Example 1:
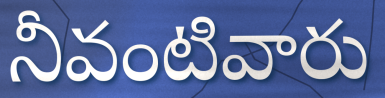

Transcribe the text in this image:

నీవంటివారు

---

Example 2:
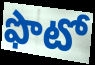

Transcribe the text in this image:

ఫొటో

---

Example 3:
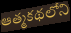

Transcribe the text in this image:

ఆత్మకథలోని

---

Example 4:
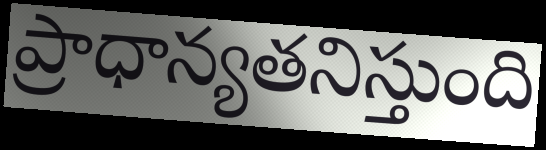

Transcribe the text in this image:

ప్రాధాన్యతనిస్తుంది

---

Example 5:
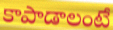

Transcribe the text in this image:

కాపాడాలంటే